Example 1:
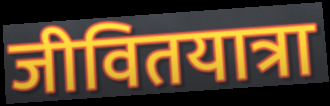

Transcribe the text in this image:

जीवितयात्रा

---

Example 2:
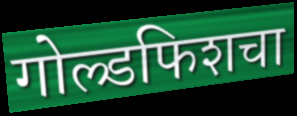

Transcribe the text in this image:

गोल्डफिशचा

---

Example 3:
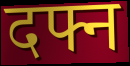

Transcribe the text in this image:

दफ्न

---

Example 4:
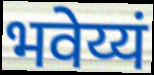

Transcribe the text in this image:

भवेय्यं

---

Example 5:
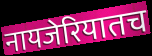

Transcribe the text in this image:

नायजेरियातच